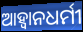
ଆହ୍ବାନଧର୍ମୀ